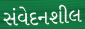
સંવેદનશીલ